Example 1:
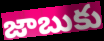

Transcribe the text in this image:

జాబుకు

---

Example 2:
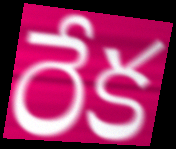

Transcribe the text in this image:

రేక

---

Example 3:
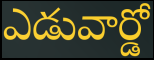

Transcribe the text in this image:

ఎడువార్డో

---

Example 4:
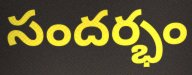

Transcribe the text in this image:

సందర్భం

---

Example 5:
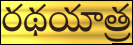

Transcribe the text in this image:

రథయాత్ర